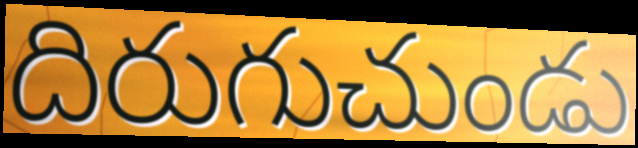
దిరుగుచుండు